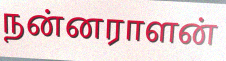
நன்னராளன்